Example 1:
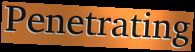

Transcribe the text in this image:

Penetrating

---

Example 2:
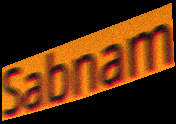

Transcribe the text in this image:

Sabnam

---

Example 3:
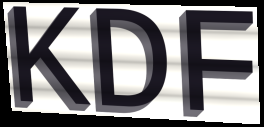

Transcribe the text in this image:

KDF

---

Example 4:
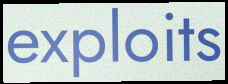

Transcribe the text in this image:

exploits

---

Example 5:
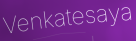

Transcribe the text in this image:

Venkatesaya